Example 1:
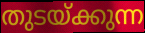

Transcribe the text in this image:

തുടയ്ക്കുന്ന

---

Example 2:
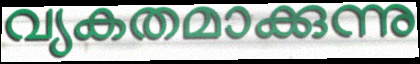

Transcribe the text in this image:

വ്യകതമാക്കുന്നു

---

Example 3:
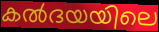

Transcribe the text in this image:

കൽദയയിലെ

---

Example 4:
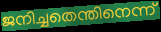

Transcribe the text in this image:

ജനിച്ചതെന്തിനെന്ന്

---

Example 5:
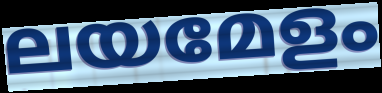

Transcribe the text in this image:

ലയമേളം